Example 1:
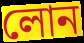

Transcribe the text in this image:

লোন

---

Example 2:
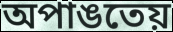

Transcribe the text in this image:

অপাঙতেয়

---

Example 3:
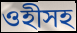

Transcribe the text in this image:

ওহীসহ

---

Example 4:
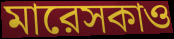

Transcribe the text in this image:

মারেসকাও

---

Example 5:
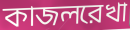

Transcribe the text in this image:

কাজলরেখা